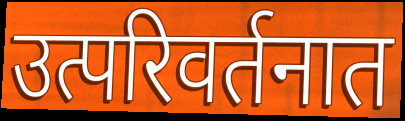
उत्परिवर्तनात